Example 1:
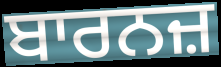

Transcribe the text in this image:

ਬਾਰਨਜ਼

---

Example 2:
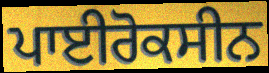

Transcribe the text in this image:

ਪਾਈਰੋਕਸੀਨ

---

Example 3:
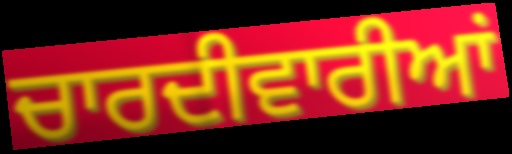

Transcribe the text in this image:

ਚਾਰਦੀਵਾਰੀਆਂ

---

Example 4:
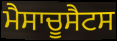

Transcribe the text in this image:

ਮੈਸਾਚੂਸੈਟਸ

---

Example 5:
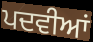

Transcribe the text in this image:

ਪਦਵੀਆਂ